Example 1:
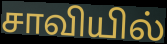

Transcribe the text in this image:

சாவியில்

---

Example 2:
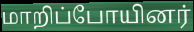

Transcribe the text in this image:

மாறிப்போயினர்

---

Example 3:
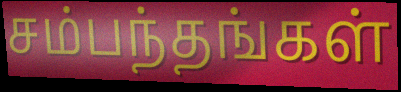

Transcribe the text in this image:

சம்பந்தங்கள்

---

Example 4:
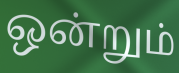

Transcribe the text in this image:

ஒன்றும்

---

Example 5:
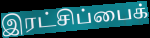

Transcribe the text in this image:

இரட்சிப்பைக்